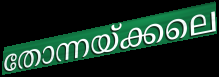
തോന്നയ്ക്കലെ